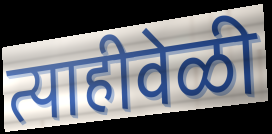
त्याहीवेळी